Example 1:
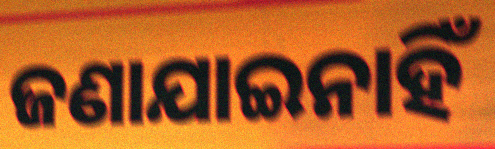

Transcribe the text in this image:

ଜଣାଯାଇନାହିଁ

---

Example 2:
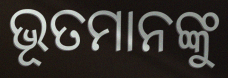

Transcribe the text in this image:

ଭୂତମାନଙ୍କୁ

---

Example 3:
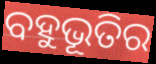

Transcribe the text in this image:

ବହୁଭୂତିର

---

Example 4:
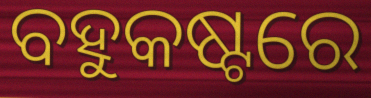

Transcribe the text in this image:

ବହୁକଷ୍ଟରେ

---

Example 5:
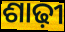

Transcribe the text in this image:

ଶାଢ଼ୀ